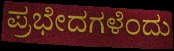
ಪ್ರಭೇದಗಳೆಂದು